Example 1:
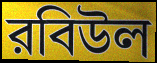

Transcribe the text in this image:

রবিউল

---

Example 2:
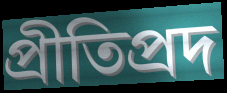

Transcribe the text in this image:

প্রীতিপ্রদ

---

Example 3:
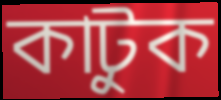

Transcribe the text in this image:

কাটুক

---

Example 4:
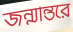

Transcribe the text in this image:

জন্মান্তরে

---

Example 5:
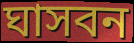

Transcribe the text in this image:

ঘাসবন